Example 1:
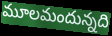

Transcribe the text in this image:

మూలమందున్నది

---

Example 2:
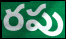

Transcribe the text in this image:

రపు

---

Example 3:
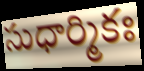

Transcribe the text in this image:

సుధార్మికః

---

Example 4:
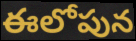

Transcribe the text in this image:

ఈలోపున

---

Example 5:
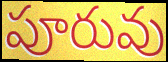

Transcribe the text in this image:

పూరువు